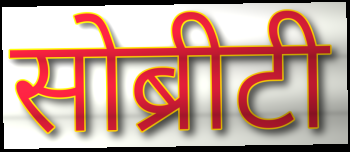
सोब्रीटी